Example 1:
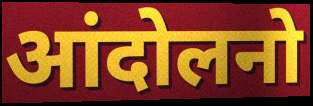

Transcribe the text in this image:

आंदोलनो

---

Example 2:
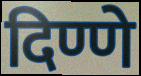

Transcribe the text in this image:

दिण्णे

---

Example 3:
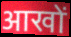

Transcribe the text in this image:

आखों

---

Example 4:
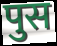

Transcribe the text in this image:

पुस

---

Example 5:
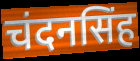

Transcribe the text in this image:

चंदनसिंह